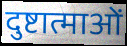
दुष्टात्माओं